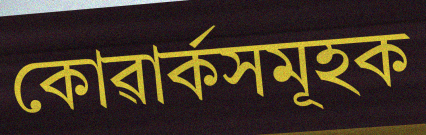
কোৱাৰ্কসমূহক